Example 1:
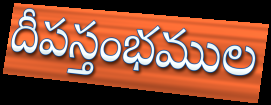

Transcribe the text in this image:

దీపస్తంభముల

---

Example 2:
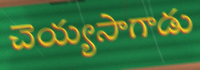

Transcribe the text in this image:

చెయ్యసాగాడు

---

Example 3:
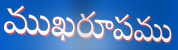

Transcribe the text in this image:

ముఖరూపము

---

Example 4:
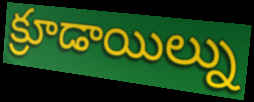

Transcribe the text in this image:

క్రూడాయిల్ను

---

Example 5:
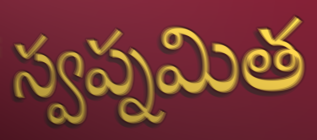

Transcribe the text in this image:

స్వప్నమిత